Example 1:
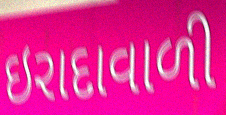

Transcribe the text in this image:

ઇરાદાવાળી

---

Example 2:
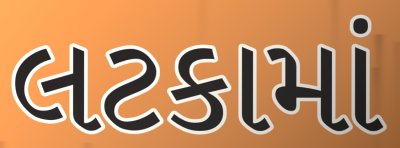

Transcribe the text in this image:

લટકામાં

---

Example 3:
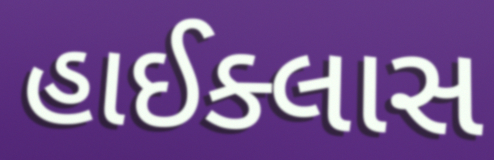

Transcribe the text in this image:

હાઈક્લાસ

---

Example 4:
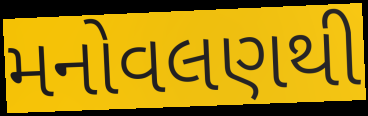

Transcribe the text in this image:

મનોવલણથી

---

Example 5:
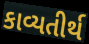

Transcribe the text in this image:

કાવ્યતીર્થ